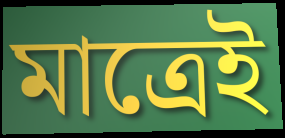
মাত্ৰেই